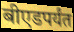
बीएडपर्यंत